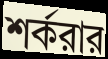
শর্করার